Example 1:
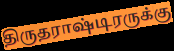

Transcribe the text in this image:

திருதராஷ்டிரருக்கு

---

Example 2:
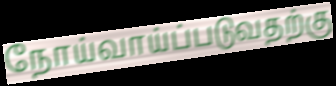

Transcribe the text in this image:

நோய்வாய்ப்படுவதற்கு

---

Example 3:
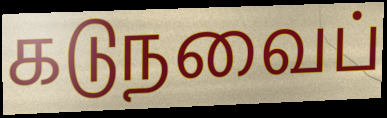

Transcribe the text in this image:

கடுநவைப்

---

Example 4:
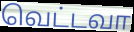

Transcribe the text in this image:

வெட்டவா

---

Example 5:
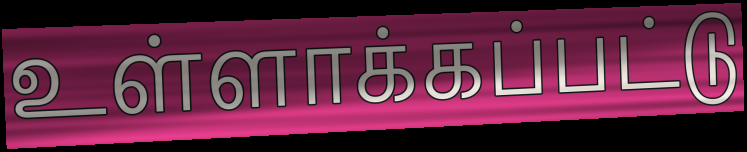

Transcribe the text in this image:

உள்ளாக்கப்பட்டு